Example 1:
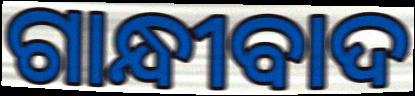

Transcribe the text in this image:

ଗାନ୍ଧୀବାଦ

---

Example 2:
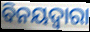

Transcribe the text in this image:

ବିନୟଦ୍ବାରା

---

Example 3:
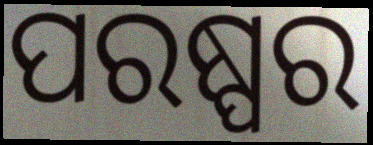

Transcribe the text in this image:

ପରଷ୍ପର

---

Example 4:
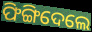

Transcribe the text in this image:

ଫିଙ୍ଗିଦେଲେ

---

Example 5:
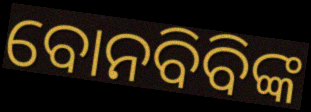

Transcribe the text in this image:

ବୋନବିବିଙ୍କ